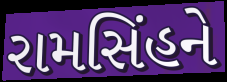
રામસિંહને